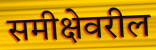
समीक्षेवरील